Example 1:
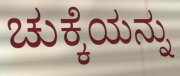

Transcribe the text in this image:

ಚುಕ್ಕೆಯನ್ನು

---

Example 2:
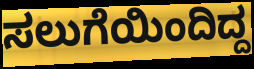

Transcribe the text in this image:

ಸಲುಗೆಯಿಂದಿದ್ದ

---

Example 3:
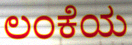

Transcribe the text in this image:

ಲಂಕೆಯ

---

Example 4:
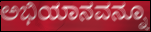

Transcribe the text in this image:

ಅಭಿಯಾನವನ್ನೂ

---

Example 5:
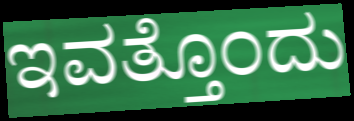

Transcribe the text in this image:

ಇವತ್ತೊಂದು